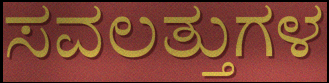
ಸವಲತ್ತುಗಳ